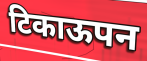
टिकाऊपन